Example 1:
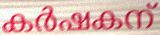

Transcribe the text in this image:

കർഷകന്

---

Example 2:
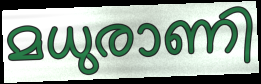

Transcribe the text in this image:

മധുരാണി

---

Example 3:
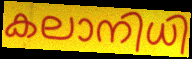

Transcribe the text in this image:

കലാനിധി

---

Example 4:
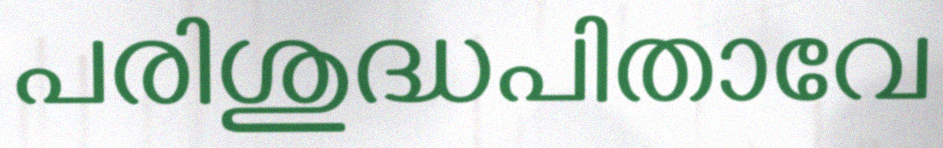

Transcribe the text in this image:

പരിശുദ്ധപിതാവേ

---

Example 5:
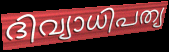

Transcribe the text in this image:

ദിവ്യാധിപത്യ